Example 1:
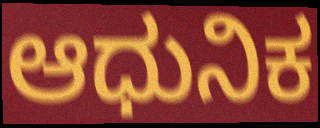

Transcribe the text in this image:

ಆಧುನಿಕ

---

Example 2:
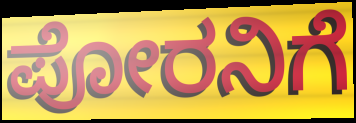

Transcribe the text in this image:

ಪೋರನಿಗೆ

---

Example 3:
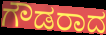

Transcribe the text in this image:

ಗೌಡರಾದ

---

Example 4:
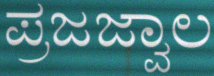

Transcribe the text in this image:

ಪ್ರಜಜ್ವಾಲ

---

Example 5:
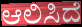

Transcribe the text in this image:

ಆಲಿಸಿದೆ